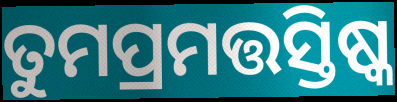
ତୁମପ୍ରମତ୍ତସ୍ତିଷ୍କ